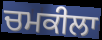
ਚਮਕੀਲਾ